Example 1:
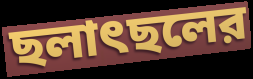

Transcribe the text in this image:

ছলাৎছলের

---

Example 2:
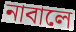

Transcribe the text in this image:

নাবালে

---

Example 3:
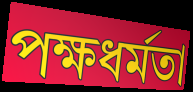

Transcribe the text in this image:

পক্ষধর্মতা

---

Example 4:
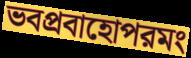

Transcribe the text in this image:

ভবপ্রবাহোপরমং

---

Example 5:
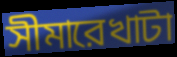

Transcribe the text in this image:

সীমারেখাটা